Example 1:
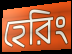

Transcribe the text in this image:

হেরিং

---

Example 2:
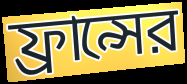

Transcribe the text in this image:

ফ্রান্সের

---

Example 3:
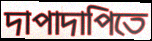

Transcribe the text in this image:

দাপাদাপিতে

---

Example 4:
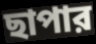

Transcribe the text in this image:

ছাপার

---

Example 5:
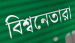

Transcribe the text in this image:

বিশ্বনেতারা